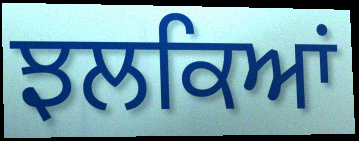
ਝਲਕਿਆਂ